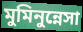
মুমিনুন্নেসা